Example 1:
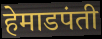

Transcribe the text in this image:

हेमाडपंती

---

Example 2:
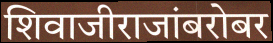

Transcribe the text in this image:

शिवाजीराजांबरोबर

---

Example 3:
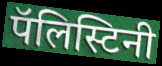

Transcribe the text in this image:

पॅलिस्टिनी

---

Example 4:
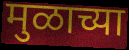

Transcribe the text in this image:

मुळाच्या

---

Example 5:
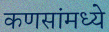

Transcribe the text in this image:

कणसांमध्ये